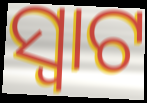
ସ୍ୱାଟ